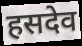
हसदेव